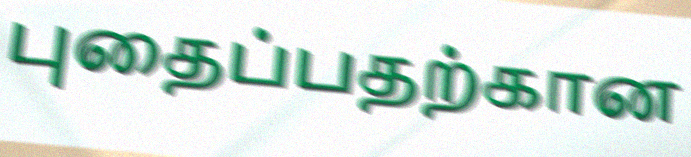
புதைப்பதற்கான